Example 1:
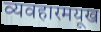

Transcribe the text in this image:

व्यवहारमयूख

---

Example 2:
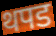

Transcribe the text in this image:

थपड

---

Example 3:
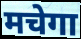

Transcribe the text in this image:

मचेगा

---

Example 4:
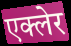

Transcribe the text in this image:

एक्लेर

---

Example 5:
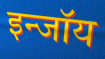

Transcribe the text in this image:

इन्जॉय